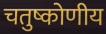
चतुष्कोणीय